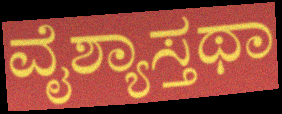
ವೈಶ್ಯಾಸ್ತಥಾ